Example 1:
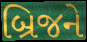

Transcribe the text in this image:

બ્રિજને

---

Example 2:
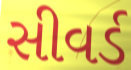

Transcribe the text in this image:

સીવર્ડ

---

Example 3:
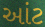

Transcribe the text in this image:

આંટ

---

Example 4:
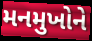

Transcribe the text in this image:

મનમુખોને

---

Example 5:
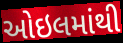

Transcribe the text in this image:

ઓઇલમાંથી